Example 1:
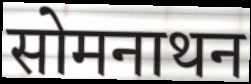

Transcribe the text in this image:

सोमनाथन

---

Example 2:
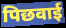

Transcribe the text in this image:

पिछवाई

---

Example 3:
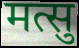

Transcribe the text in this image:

मत्सु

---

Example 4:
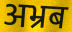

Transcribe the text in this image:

अभ्रब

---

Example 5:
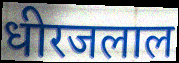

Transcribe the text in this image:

धीरजलाल